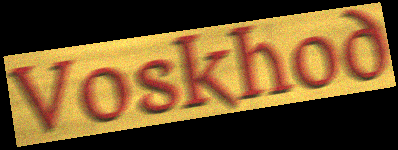
Voskhod